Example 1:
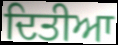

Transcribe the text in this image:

ਦਿਤੀਆ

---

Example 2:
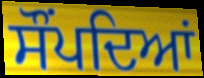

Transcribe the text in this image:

ਸੌਂਪਦਿਆਂ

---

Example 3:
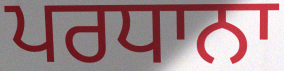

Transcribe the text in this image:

ਪਰਧਾਨਾ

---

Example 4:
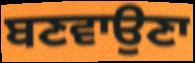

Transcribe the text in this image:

ਬਣਵਾਉਣਾ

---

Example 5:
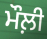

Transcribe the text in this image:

ਮੌਲ਼ੀ